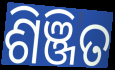
ଶିଞ୍ଜିତ